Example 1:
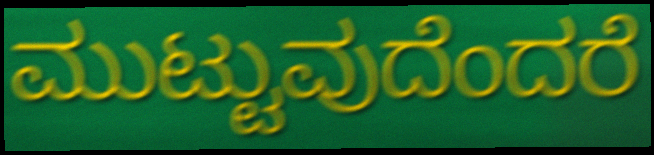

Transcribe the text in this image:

ಮುಟ್ಟುವುದೆಂದರೆ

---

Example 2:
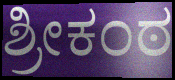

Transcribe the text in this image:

ಶ್ರೀಕಂಠ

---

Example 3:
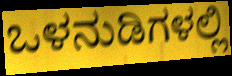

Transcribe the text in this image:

ಒಳನುಡಿಗಳಲ್ಲಿ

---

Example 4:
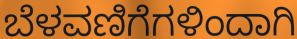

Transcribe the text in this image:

ಬೆಳವಣಿಗೆಗಳಿಂದಾಗಿ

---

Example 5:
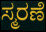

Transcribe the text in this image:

ಸ್ಮರಣೆ